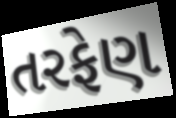
તરફેણ